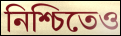
নিশ্চিতেও